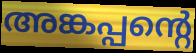
അങ്കപ്പന്റെ